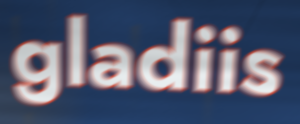
gladiis